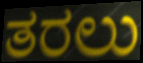
ತರಲು